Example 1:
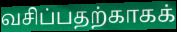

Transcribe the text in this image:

வசிப்பதற்காகக்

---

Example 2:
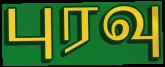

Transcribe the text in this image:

புரவு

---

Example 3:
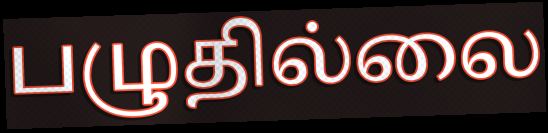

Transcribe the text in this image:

பழுதில்லை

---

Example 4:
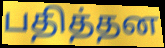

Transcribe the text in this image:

பதித்தன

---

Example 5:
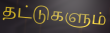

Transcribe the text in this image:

தட்டுகளும்